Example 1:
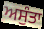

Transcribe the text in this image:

ਅਸੁੰਤਾ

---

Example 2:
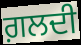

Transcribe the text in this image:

ਗ਼ਲਦੀ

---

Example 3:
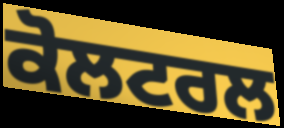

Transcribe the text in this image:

ਕੋਲਟਰਲ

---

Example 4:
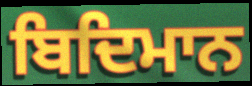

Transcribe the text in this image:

ਬਿਦਿਮਾਨ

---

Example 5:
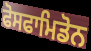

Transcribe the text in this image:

ਫੋਸਫਾਮਿਡੋਨ